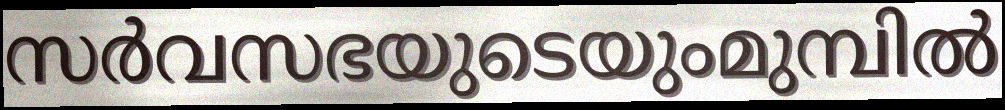
സർവസഭയുടെയുംമുമ്പിൽ